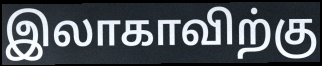
இலாகாவிற்கு